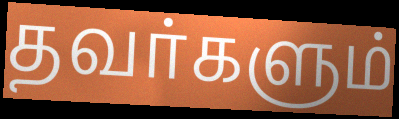
தவர்களும்